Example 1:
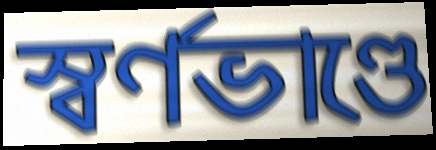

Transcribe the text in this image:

স্বর্ণভাণ্ডে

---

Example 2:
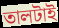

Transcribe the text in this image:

তালটাই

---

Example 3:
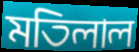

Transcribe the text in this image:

মতিলাল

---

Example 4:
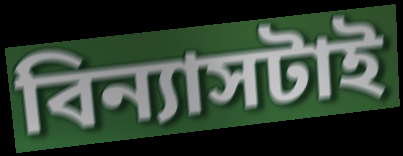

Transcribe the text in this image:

বিন্যাসটাই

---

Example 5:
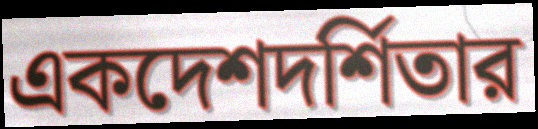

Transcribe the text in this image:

একদেশদর্শিতার